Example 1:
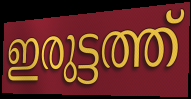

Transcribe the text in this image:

ഇരുട്ടത്ത്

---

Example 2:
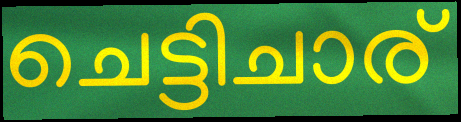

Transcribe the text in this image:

ചെട്ടിചാര്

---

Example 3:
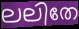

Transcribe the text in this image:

ലലിതേ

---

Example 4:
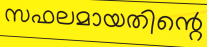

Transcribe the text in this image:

സഫലമായതിന്റെ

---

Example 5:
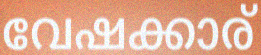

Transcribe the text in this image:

വേഷക്കാര്